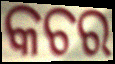
କଚର